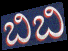
ಬಿಬಿ